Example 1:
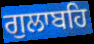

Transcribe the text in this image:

ਗੁਲਾਬਹਿ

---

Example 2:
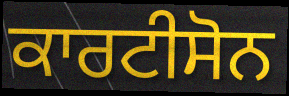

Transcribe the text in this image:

ਕਾਰਟੀਸੋਨ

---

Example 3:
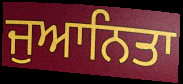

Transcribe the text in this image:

ਜੁਆਨਿਤਾ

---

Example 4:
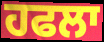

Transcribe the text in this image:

ਹਫਲਾ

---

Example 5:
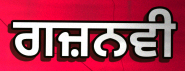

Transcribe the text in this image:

ਗਜ਼ਨਵੀ